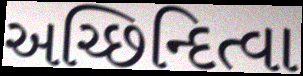
અચ્છિન્દિત્વા